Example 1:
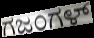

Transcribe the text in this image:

ಗಜಂಗಳ್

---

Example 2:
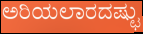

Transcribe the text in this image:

ಅರಿಯಲಾರದಷ್ಟು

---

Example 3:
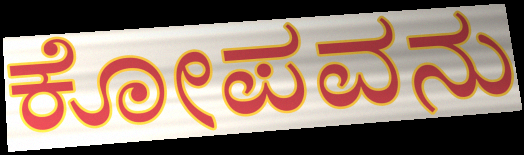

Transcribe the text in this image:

ಕೋಪವನು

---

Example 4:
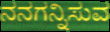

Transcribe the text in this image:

ನನಗನ್ನಿಸುವ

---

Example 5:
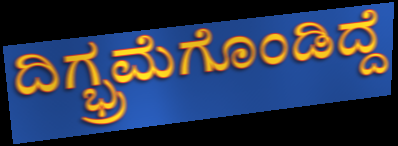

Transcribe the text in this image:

ದಿಗ್ಭ್ರಮೆಗೊಂಡಿದ್ದೆ